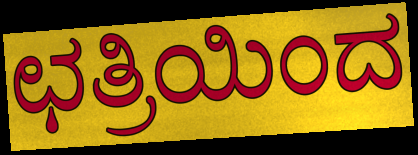
ಛತ್ರಿಯಿಂದ